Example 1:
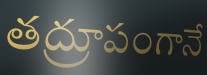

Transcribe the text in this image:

తద్రూపంగానే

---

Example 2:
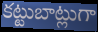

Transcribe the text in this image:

కట్టుబాట్లుగా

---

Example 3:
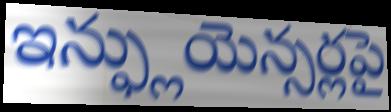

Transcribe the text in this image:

ఇన్ఫ్లుయెన్సర్లపై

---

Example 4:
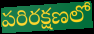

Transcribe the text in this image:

పరిరక్షణలో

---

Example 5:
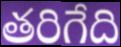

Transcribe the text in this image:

తరిగేది